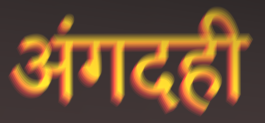
अंगदही